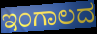
ಇಂಗಾಲದ